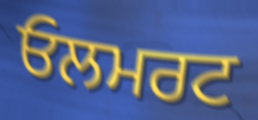
ਓਲਮਰਟ